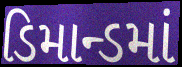
ડિમાન્ડમાં